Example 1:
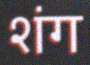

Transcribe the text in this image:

शंग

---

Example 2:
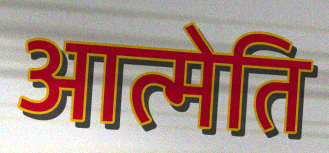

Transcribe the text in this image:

आत्मेति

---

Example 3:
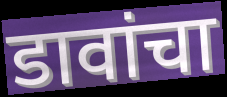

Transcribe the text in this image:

डावांचा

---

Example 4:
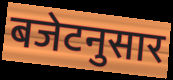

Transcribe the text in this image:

बजेटनुसार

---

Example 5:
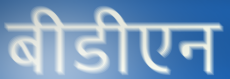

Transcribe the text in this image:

बीडीएन